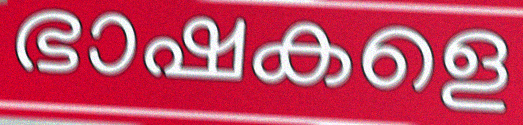
ഭാഷകളെ